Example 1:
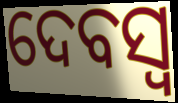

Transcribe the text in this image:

ଦେବସ୍ୱ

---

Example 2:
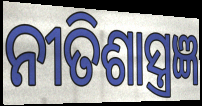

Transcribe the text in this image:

ନୀତିଶାସ୍ତ୍ରଜ୍ଞ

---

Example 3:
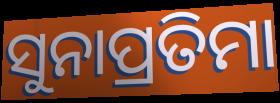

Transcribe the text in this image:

ସୁନାପ୍ରତିମା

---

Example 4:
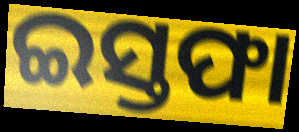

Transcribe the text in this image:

ଇସ୍ତଫା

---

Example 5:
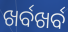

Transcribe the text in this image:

ଖର୍ବଖର୍ବ